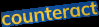
counteract